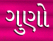
ગુણો